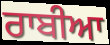
ਰਾਬੀਆ